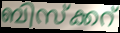
ബിസ്ക്കറ്